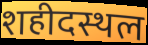
शहीदस्थल